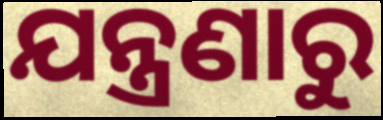
ଯନ୍ତ୍ରଣାରୁ